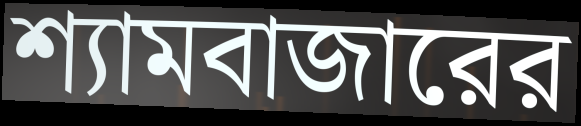
শ্যামবাজারের